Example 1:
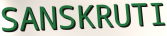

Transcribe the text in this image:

SANSKRUTI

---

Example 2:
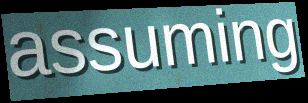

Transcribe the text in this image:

assuming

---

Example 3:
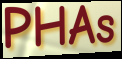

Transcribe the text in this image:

PHAs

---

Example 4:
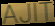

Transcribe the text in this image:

AJIT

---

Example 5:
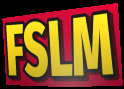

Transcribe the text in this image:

FSLM